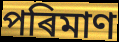
পৰিমাণ